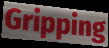
Gripping